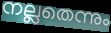
നല്ലതെന്നും